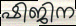
ഷിജിന